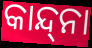
କାନ୍ଦ୍‌ନା